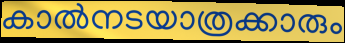
കാൽനടയാത്രക്കാരും